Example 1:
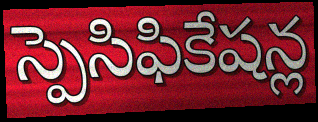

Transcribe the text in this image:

స్పెసిఫికేషన్ల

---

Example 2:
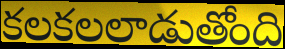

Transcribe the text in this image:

కలకలలాడుతోంది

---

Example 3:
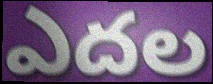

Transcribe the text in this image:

ఎదల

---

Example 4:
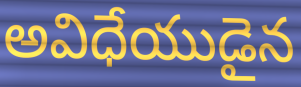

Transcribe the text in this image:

అవిధేయుడైన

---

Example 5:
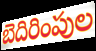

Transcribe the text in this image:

బెదిరింపుల